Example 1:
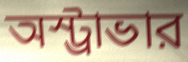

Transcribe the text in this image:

অস্ট্রাভার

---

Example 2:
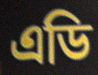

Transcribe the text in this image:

এডি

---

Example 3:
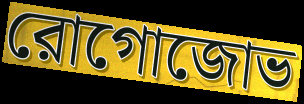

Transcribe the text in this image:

রোগোজোভ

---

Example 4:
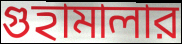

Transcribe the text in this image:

গুহামালার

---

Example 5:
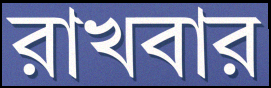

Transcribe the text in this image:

রাখবার